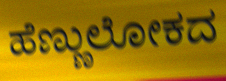
ಹೆಣ್ಣುಲೋಕದ